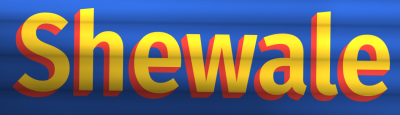
Shewale